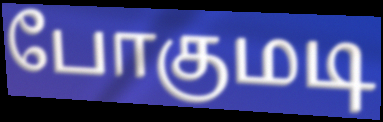
போகுமடி